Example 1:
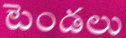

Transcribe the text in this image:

టెండలు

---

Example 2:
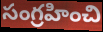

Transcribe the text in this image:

సంగ్రహించి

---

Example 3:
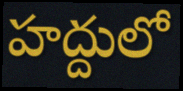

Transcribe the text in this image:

హద్దులో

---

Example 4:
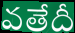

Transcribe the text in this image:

వతేదీ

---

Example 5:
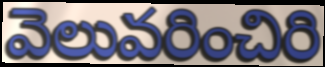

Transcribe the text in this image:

వెలువరించిరి